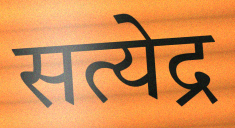
सत्येद्र